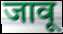
जावू